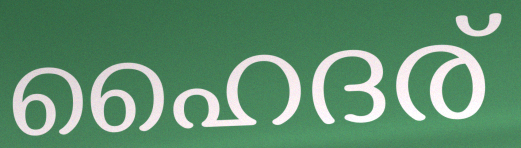
ഹൈദര്